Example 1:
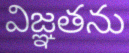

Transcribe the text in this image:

విజ్ఞతను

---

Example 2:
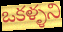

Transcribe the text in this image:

ఒకళ్ళని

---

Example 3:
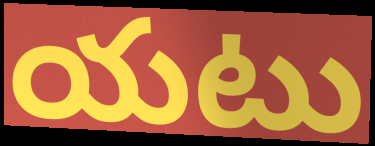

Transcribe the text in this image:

యటు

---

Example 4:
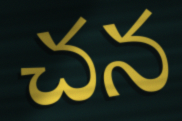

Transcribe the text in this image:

చన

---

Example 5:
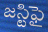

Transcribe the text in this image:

జస్టిఫై